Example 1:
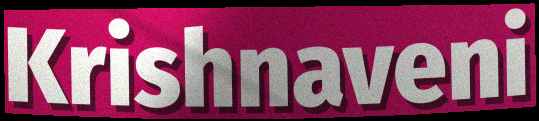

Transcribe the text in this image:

Krishnaveni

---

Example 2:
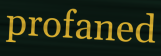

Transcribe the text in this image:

profaned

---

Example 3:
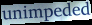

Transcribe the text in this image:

unimpeded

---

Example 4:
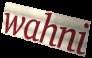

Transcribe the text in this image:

wahni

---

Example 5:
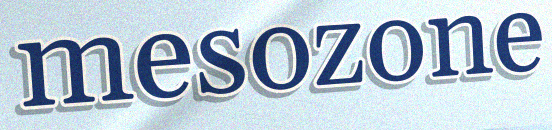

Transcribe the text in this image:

mesozone